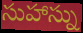
సుహాస్ను